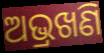
ଅଭ୍ରଖଣି